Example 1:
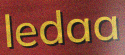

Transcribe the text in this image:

ledaa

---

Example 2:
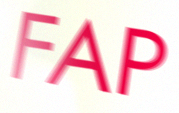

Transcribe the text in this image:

FAP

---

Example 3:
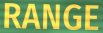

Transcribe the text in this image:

RANGE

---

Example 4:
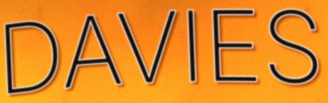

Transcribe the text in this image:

DAVIES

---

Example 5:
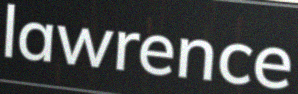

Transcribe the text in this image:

lawrence